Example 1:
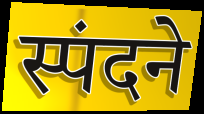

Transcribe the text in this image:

स्पंदने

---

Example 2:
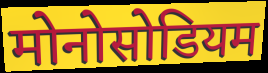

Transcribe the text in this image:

मोनोसोडियम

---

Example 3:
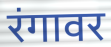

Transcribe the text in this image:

रंगावर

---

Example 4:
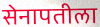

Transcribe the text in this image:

सेनापतीला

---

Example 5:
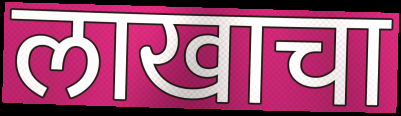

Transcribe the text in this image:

लाखाचा